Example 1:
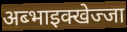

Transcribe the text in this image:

अब्भाइक्खेज्जा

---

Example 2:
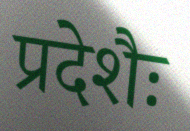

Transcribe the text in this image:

प्रदेशैः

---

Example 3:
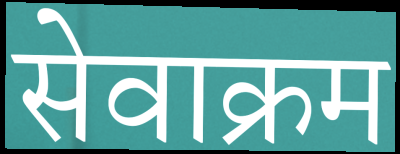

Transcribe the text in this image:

सेवाक्रम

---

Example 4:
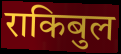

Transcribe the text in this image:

राकिबुल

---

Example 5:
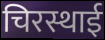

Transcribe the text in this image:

चिरस्थाई